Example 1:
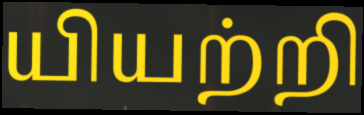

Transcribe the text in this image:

யியற்றி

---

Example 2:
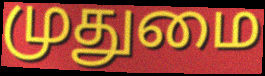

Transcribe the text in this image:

முதுமை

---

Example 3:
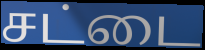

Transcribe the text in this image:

சட்டை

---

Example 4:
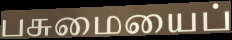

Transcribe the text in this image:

பசுமையைப்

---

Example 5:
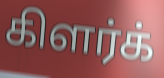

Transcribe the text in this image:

கிளர்க்